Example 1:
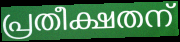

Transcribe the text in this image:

പ്രതീക്ഷതന്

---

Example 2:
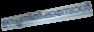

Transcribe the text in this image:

ഉറച്ചുനിൽക്കുമ്പോൾ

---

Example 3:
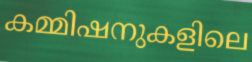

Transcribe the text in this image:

കമ്മിഷനുകളിലെ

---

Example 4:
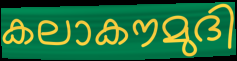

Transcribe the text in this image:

കലാകൗമുദി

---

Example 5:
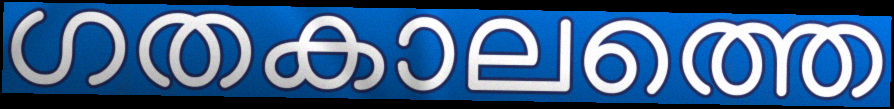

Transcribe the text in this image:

ഗതകാലത്തെ